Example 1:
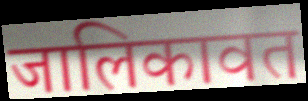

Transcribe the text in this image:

जालिकावत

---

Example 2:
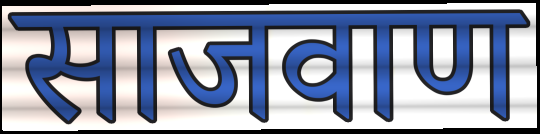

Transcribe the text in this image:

साजवाण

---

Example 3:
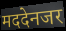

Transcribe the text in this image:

मददेनजर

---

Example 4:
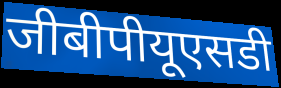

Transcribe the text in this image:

जीबीपीयूएसडी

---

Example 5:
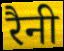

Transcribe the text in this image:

रैनी